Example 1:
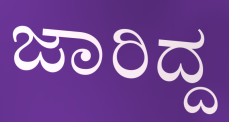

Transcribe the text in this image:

ಜಾರಿದ್ದ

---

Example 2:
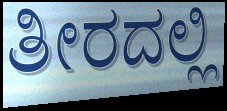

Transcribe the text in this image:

ತೀರದಲ್ಲಿ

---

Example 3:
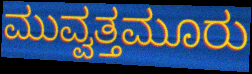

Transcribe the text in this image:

ಮುವ್ವತ್ತಮೂರು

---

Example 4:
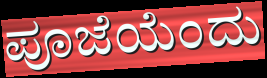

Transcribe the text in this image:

ಪೂಜೆಯೆಂದು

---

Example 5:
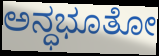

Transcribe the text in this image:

ಅನ್ಧಭೂತೋ